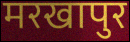
मरखापुर